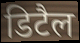
डिटैल